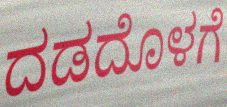
ದಡದೊಳಗೆ